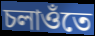
চলাওঁতে